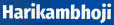
Harikambhoji